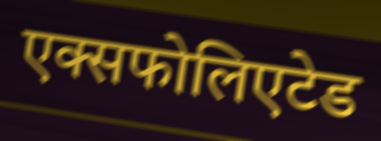
एक्सफोलिएटेड